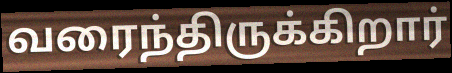
வரைந்திருக்கிறார்